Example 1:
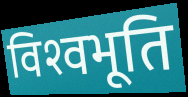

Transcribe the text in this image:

विश्वभूति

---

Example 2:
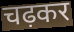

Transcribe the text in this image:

चढ़कर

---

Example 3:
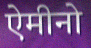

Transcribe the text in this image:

ऐमीनो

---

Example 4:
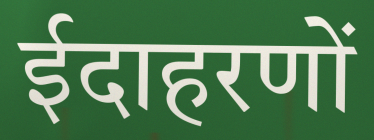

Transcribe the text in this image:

ईदाहरणों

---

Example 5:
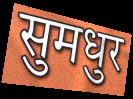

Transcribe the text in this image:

सुमधुर